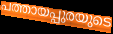
പത്തായപ്പുരയുടെ